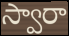
స్వారా